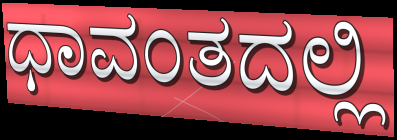
ಧಾವಂತದಲ್ಲಿ